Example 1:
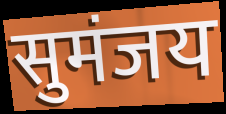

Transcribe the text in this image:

सुमंजय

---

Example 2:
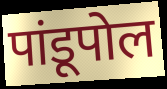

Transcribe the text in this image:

पांडूपोल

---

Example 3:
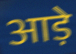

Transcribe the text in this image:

आड़े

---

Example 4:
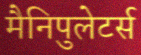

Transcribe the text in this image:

मैनिपुलेटर्स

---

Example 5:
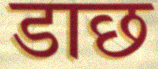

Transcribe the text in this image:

डाछ